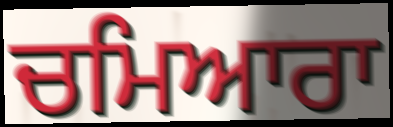
ਚਮਿਆਰਾ